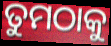
ତୁମଠାକୁ